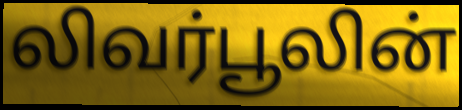
லிவர்பூலின்